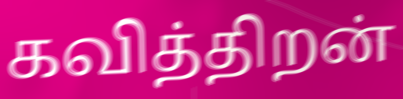
கவித்திறன்